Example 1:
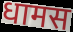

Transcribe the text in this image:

धामस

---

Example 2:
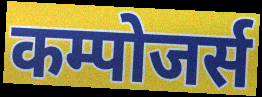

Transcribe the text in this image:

कम्पोजर्स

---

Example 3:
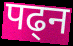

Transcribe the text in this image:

पढ्न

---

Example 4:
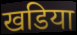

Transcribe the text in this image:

खडिया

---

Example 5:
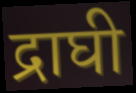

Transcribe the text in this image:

द्राघी